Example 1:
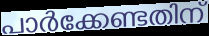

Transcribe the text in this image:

പാർക്കേണ്ടതിന്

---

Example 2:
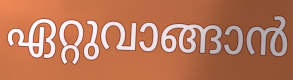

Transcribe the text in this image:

ഏറ്റുവാങ്ങാൻ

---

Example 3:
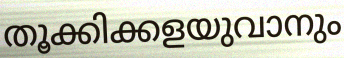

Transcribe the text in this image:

തൂക്കിക്കളയുവാനും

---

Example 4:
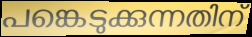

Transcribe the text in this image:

പങ്കെടുക്കുന്നതിന്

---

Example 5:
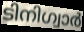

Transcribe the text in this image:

ടിനിഗ്വാർ